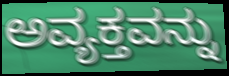
ಅವ್ಯಕ್ತವನ್ನು